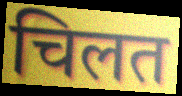
चिलत